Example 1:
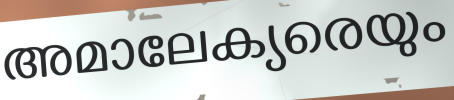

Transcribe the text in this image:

അമാലേക്യരെയും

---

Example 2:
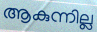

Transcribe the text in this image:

ആകുന്നില്ല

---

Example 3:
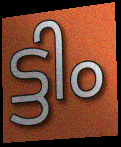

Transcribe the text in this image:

ട്ടിം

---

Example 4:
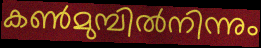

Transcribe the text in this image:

കൺമുമ്പിൽനിന്നും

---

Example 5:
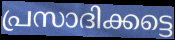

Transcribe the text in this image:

പ്രസാദിക്കട്ടെ